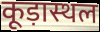
कूड़ास्थल